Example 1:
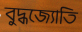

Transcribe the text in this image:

বুদ্ধজ্যোতি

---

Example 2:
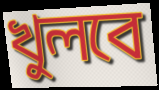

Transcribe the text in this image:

খুলবে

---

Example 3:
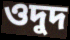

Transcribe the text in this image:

ওদুদ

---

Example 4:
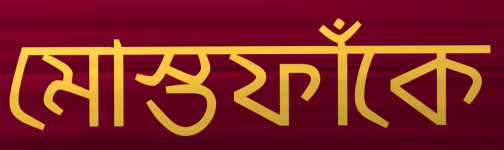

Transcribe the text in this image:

মোস্তফাঁকে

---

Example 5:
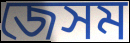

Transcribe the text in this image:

জেসম